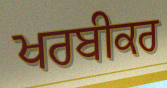
ਖਰਬੀਕਰ